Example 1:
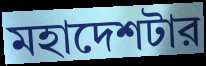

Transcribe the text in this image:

মহাদেশটার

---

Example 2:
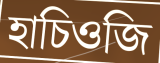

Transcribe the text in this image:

হাচিওজি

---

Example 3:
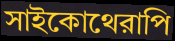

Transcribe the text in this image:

সাইকোথেরাপি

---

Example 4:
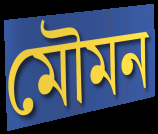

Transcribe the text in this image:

মৌমন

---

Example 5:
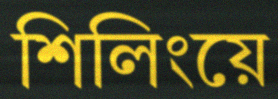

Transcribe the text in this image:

শিলিংয়ে